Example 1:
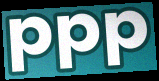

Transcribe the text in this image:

ppp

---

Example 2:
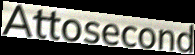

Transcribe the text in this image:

Attosecond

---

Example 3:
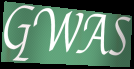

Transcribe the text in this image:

GWAS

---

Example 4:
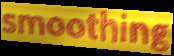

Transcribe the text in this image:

smoothing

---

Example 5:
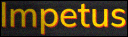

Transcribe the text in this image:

Impetus